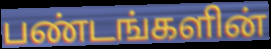
பண்டங்களின்